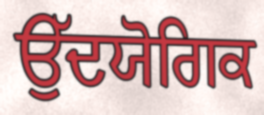
ਉੱਦਯੋਗਿਕ